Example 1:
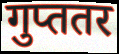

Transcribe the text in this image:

गुप्ततर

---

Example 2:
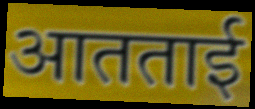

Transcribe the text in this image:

आतताई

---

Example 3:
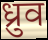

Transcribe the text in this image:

ध्रुव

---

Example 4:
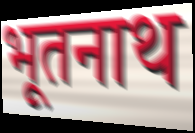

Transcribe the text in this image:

भूतनाथ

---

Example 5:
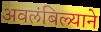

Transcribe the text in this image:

अवलंबिल्याने